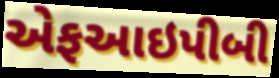
એફઆઇપીબી